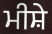
ਮੀਸ਼ੇ